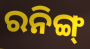
ରନିଙ୍ଗ୍